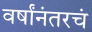
वर्षांनंतरचं